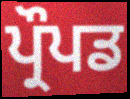
ਪ੍ਰੌਪਡ